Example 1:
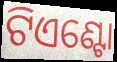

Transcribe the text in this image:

ଟିଏଣ୍ଟୋ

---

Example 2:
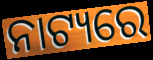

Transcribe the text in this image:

ନାଟ୍ୟରେ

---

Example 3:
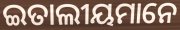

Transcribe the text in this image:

ଇତାଲୀୟମାନେ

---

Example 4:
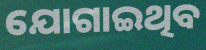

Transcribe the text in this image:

ଯୋଗାଇଥିବ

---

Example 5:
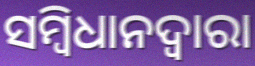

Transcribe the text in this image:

ସମ୍ବିଧାନଦ୍ବାରା